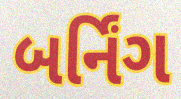
બર્નિંગ